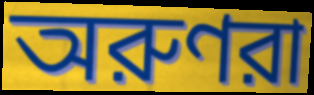
অরুণরা